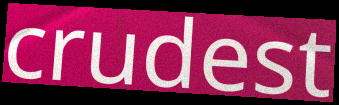
crudest